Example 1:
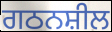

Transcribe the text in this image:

ਗਠਨਸ਼ੀਲ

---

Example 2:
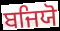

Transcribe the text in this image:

ਬਜਿਯੋ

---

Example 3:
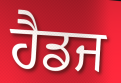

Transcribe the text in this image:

ਹੈਡਜ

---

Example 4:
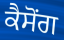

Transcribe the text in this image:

ਕੈਸੋਂਗ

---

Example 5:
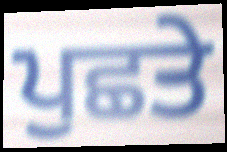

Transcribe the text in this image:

ਪੁਛਤੇ